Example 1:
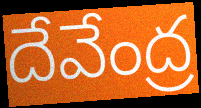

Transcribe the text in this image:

దేవేంద్ర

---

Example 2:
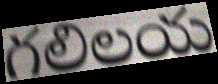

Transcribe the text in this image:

గలిలయ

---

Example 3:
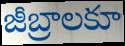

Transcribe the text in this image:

జీబ్రాలకూ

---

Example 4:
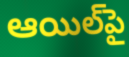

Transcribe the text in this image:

ఆయిల్‌పై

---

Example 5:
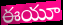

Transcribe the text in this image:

ఈయూ